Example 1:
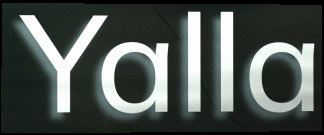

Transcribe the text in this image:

Yalla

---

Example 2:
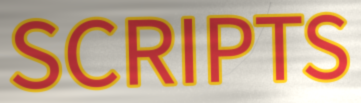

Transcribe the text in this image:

SCRIPTS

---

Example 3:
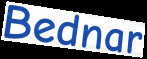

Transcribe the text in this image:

Bednar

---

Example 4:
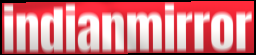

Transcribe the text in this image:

indianmirror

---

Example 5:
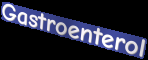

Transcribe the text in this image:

Gastroenterol